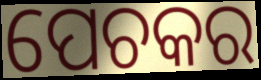
ପେଚକର